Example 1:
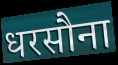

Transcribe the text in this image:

धरसौना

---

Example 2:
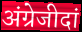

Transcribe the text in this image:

अंग्रेजीदां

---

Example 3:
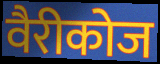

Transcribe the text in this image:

वैरीकोज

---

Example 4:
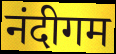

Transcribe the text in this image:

नंदीगम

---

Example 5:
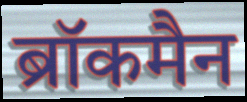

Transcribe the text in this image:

ब्रॉकमैन